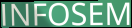
INFOSEM